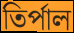
তিৰ্পাল